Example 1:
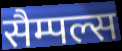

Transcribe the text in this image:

सैम्‍पल्‍स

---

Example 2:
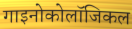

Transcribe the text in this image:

गाइनोकोलॉजिकल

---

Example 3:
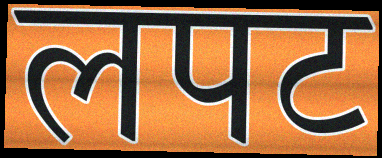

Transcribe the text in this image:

लपट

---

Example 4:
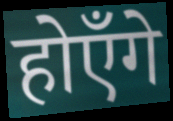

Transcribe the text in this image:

होएँगे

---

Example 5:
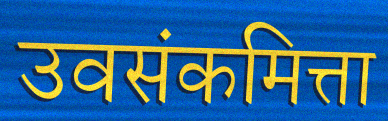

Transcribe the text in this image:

उवसंकमित्ता